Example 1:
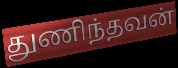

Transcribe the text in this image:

துணிந்தவன்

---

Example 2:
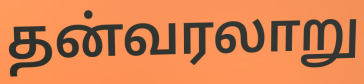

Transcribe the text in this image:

தன்வரலாறு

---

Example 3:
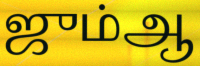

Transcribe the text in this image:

ஜும்ஆ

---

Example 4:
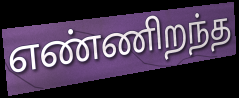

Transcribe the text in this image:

எண்ணிறந்த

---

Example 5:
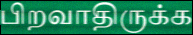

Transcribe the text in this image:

பிறவாதிருக்க